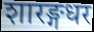
शारङ्गधर